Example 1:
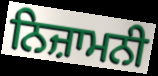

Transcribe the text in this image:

ਨਿਜ਼ਾਮਨੀ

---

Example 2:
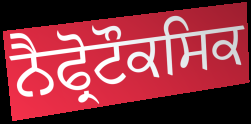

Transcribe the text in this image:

ਨੈਫ੍ਰੋਟੌਕਸਿਕ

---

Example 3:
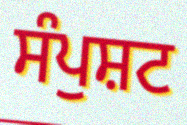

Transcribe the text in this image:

ਸੰਪੁਸ਼ਟ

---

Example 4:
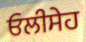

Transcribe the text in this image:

ਓਲੀਸੇਹ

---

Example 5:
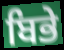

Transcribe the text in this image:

ਬਿਭੇ